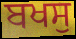
ਬਖਸੁ